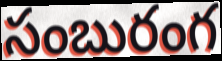
సంబురంగ